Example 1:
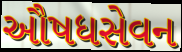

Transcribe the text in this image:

ઔષધસેવન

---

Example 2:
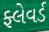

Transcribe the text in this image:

ફ્લેવર્ડ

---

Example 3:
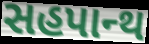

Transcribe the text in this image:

સહપાન્થ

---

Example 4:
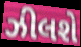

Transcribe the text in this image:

ઝીલશે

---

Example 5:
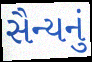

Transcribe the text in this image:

સૈન્યનું